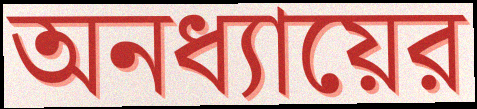
অনধ্যায়ের